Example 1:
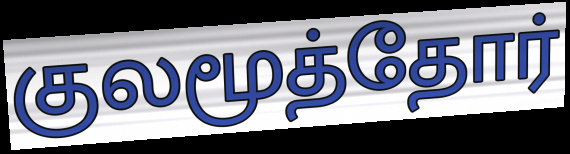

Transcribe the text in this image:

குலமூத்தோர்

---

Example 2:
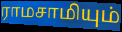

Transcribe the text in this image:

ராமசாமியும்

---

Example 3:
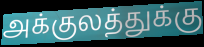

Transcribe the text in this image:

அக்குலத்துக்கு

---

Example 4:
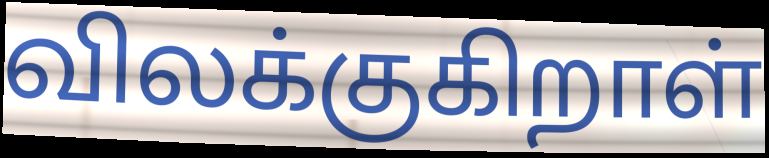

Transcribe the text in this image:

விலக்குகிறாள்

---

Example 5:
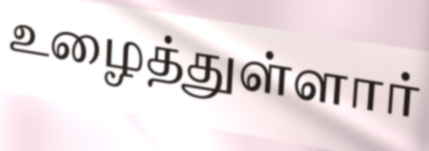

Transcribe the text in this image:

உழைத்துள்ளார்